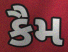
કૈમ